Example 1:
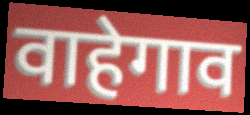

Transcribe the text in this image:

वाहेगाव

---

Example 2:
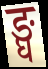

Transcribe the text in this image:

ङ्घ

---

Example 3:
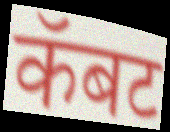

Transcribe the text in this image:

कॅबट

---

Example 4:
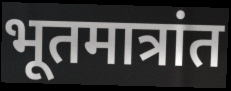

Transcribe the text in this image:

भूतमात्रांत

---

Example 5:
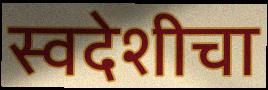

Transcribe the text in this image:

स्वदेशीचा